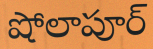
షోలాపూర్